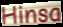
Hinsa